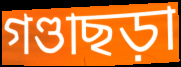
গণ্ডাছড়া